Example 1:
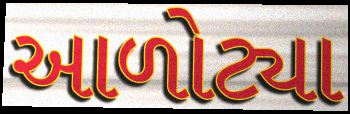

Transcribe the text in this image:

આળોટ્યા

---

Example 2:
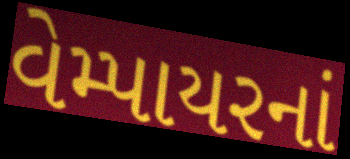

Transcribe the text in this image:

વેમ્પાયરનાં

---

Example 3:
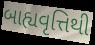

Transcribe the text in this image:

બાહ્યવૃત્તિથી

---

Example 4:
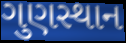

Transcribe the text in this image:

ગુણસ્થાન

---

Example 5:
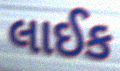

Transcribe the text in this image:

લાઈક